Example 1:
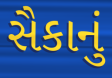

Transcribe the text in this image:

સૈકાનું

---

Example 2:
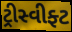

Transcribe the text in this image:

ટ્રીસ્વીફ્ટ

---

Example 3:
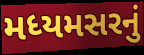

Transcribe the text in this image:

મધ્યમસરનું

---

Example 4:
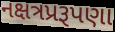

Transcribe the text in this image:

નક્ષત્રપ્રરૂપણા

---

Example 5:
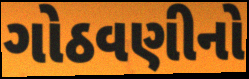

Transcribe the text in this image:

ગોઠવણીનો